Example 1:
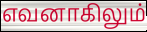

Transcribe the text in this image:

எவனாகிலும்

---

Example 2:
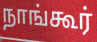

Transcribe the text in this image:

நாங்கூர்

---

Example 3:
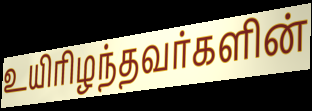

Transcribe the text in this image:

உயிரிழந்தவர்களின்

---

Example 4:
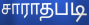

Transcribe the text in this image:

சாராதபடி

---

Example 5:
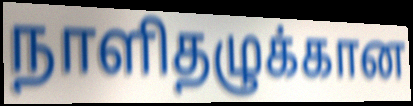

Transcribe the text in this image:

நாளிதழுக்கான